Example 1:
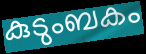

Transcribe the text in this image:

കുടുംബകം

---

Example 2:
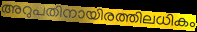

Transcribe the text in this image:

അറുപതിനായിരത്തിലധികം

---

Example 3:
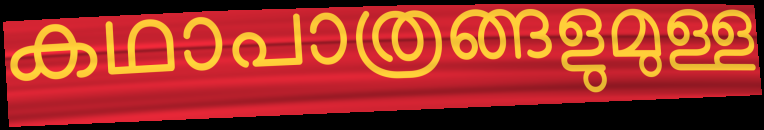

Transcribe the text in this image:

കഥാപാത്രങ്ങളുമുള്ള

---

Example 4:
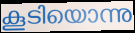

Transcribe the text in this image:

കൂടിയൊന്നു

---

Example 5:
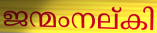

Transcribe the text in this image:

ജന്മംനല്കി